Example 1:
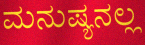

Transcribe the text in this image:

ಮನುಷ್ಯನಲ್ಲ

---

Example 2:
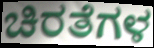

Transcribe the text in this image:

ಚಿರತೆಗಳ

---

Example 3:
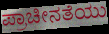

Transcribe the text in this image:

ಪ್ರಾಚೀನತೆಯು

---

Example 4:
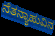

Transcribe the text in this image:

ನೆತನ್ಯಾಹುವಿನ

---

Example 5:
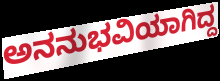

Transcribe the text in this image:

ಅನನುಭವಿಯಾಗಿದ್ದ